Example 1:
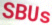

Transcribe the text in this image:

SBUs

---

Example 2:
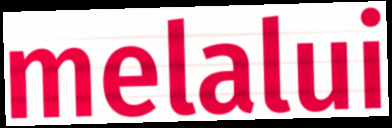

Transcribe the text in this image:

melalui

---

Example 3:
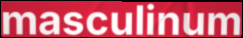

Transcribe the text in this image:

masculinum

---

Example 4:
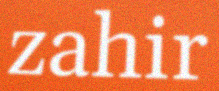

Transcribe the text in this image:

zahir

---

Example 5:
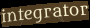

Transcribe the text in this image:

integrator